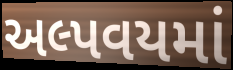
અલ્પવયમાં